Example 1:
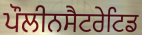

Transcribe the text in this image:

ਪੌਲੀਨਸੈਟਰੇਟਿਡ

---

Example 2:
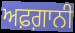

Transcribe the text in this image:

ਅਫ਼ਗ਼ਾਨੀ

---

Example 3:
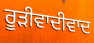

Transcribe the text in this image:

ਰੂੜੀਵਾਦੀਵਾਦ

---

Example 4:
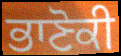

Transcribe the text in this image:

ਭਾਣੋਕੀ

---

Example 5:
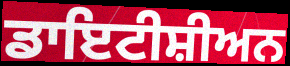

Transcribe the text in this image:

ਡਾਇਟੀਸ਼ੀਅਨ